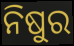
ନିଷୁର